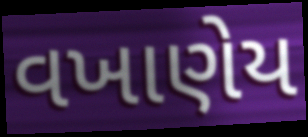
વખાણેય